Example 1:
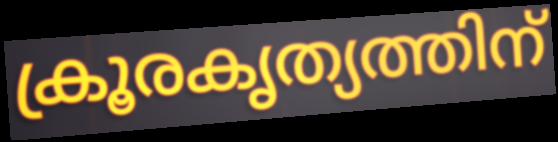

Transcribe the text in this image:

ക്രൂരകൃത്യത്തിന്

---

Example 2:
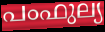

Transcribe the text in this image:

പംഫുല്യ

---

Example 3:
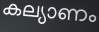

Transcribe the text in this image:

കല്യാണം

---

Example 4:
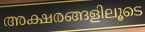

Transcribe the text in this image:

അക്ഷരങ്ങളിലൂടെ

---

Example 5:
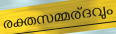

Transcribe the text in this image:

രക്തസമ്മര്ദവും